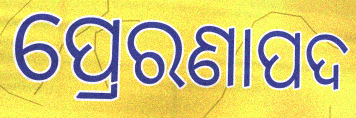
ପ୍ରେରଣାପଦ